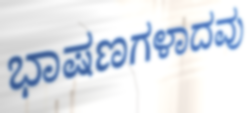
ಭಾಷಣಗಳಾದವು